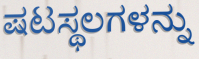
ಷಟಸ್ಥಲಗಳನ್ನು